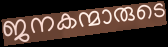
ജനകന്മാരുടെ